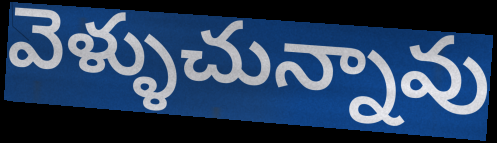
వెళ్ళుచున్నావు